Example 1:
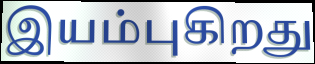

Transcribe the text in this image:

இயம்புகிறது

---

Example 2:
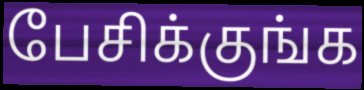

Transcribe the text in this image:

பேசிக்குங்க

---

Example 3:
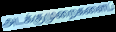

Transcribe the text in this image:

அடக்குமுறைகளைப்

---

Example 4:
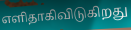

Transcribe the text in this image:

எளிதாகிவிடுகிறது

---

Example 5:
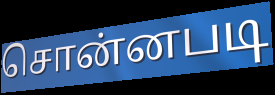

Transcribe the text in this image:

சொன்னபடி